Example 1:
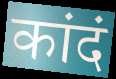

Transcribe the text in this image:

कांदं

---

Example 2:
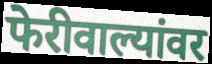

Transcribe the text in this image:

फेरीवाल्यांवर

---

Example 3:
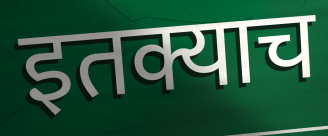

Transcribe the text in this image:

इतक्याच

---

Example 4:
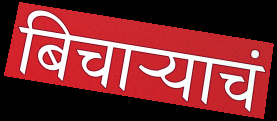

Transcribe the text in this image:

बिचाऱ्याचं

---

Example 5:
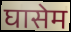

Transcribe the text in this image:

घासेम